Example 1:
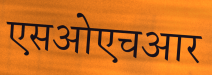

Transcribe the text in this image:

एसओएचआर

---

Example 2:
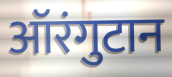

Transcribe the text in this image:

ऑरंगुटान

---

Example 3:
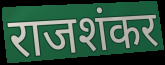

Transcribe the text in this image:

राजशंकर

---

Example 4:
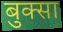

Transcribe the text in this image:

बुक्सा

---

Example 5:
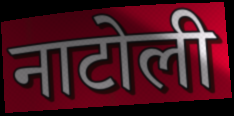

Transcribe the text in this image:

नाटोली